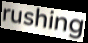
rushing